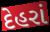
દેહરાં